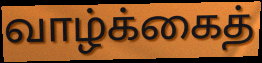
வாழ்க்கைத்